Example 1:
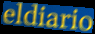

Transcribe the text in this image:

eldiario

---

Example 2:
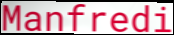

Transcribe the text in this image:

Manfredi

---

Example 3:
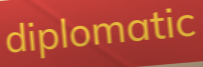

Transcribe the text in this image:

diplomatic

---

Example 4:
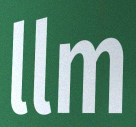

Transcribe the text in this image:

llm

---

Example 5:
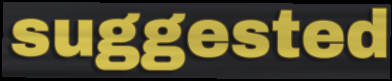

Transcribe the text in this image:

suggested